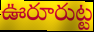
ఊరూరుట్ట